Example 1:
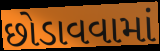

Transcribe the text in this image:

છોડાવવામાં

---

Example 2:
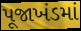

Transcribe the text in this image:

પૂજાખંડમાં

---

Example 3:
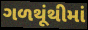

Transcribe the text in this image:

ગળથૂંથીમાં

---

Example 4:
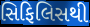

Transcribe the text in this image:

સિફિલિસથી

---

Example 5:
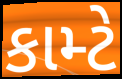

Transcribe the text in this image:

કામ્ટે